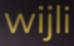
wijli